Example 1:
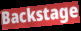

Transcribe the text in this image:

Backstage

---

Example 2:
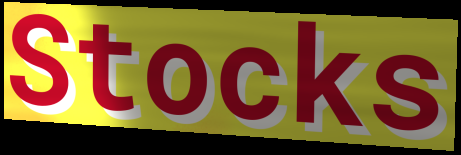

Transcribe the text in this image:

Stocks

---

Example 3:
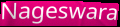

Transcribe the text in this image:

Nageswara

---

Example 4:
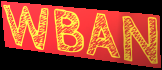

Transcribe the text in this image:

WBAN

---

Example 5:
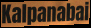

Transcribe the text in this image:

Kalpanabai